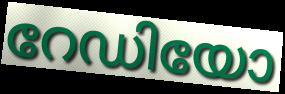
റേഡിയോ